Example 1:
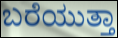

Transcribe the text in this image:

ಬರೆಯುತ್ತಾ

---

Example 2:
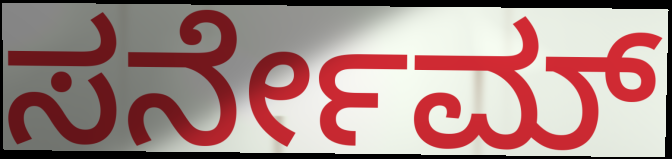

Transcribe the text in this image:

ಸರ್ನೇಮ್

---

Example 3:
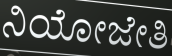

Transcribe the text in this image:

ನಿಯೋಜೇತಿ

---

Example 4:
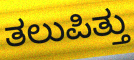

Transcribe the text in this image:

ತಲುಪಿತ್ತು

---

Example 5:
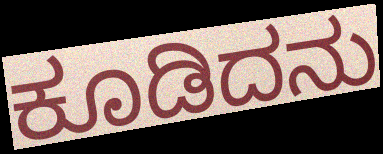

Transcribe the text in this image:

ಕೂಡಿದನು